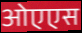
ओएएस